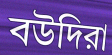
বউদিরা